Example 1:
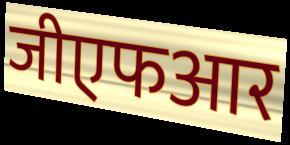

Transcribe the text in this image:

जीएफआर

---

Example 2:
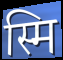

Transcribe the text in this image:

स्मि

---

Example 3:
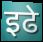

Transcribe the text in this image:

इढे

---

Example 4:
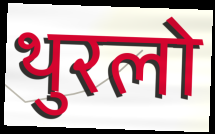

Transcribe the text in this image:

थुरलो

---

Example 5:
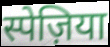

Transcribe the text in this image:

स्पेज़िया